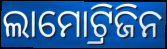
ଲାମୋଟ୍ରିଜିନ